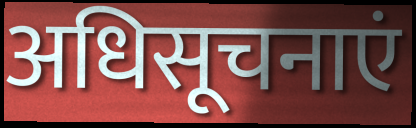
अधिसूचनाएं